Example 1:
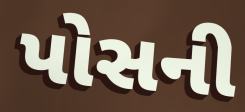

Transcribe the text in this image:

પોસની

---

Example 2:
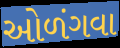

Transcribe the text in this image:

ઓળંગવા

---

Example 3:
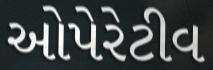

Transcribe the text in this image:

ઓપેરેટીવ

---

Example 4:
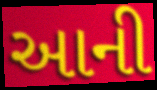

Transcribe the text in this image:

આની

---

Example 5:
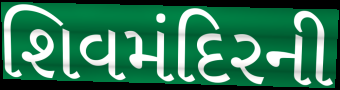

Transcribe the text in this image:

શિવમંદિરની